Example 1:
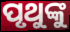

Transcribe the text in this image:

ପୃଥୁଙ୍କୁ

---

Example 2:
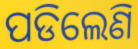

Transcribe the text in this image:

ପଡିଲେଣି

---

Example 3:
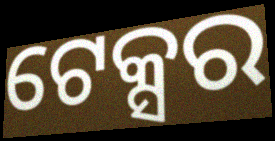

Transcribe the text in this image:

ଟେକ୍ସର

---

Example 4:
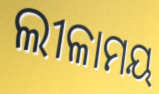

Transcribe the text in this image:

ଲୀଳାମୟ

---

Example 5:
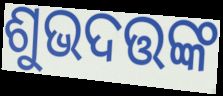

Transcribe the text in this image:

ଶୁଭଦତ୍ତଙ୍କ